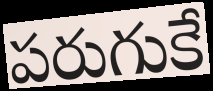
పరుగుకే